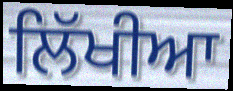
ਲਿੱਖੀਆ